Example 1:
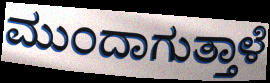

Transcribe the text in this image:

ಮುಂದಾಗುತ್ತಾಳೆ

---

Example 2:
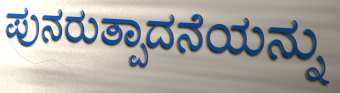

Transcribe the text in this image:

ಪುನರುತ್ಪಾದನೆಯನ್ನು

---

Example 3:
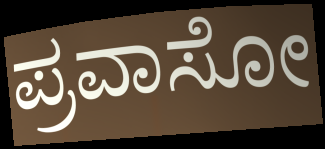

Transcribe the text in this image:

ಪ್ರವಾಸೋ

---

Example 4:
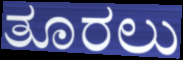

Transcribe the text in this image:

ತೂರಲು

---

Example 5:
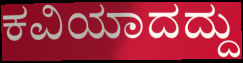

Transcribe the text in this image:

ಕವಿಯಾದದ್ದು